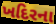
ખદિરના